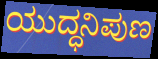
ಯುದ್ಧನಿಪುಣ